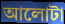
আলোটা